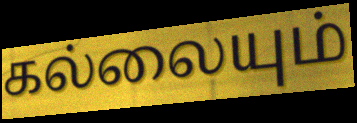
கல்லையும்